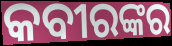
କବୀରଙ୍କର